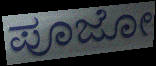
ಪೂಜೋ